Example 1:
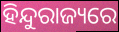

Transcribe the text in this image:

ହିନ୍ଦୁରାଜ୍ୟରେ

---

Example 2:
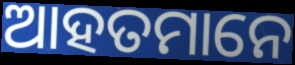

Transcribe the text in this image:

ଆହତମାନେ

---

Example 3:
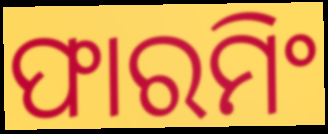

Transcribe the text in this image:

ଫାରମିଂ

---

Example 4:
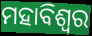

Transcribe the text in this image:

ମହାବିଶ୍ଵର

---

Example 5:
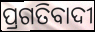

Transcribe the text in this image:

ପ୍ରଗତିବାଦୀ